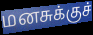
மனசுக்குச்